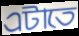
এটাতে